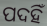
ପଦହିଁ